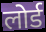
लोर्ड